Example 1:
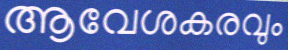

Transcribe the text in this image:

ആവേശകരവും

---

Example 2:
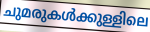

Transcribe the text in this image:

ചുമരുകൾക്കുള്ളിലെ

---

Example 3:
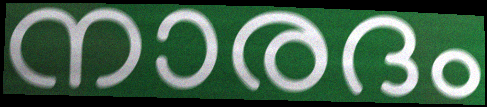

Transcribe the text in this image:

നാരദം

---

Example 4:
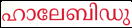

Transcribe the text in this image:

ഹാലേബിഡു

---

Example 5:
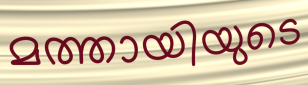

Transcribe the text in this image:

മത്തായിയുടെ